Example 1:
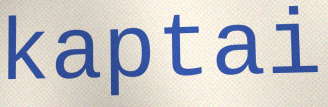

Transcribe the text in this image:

kaptai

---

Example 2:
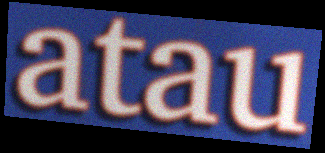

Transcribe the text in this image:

atau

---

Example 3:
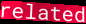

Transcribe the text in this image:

related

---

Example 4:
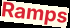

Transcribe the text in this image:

Ramps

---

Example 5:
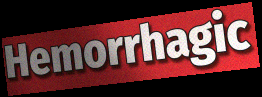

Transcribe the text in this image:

Hemorrhagic